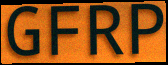
GFRP